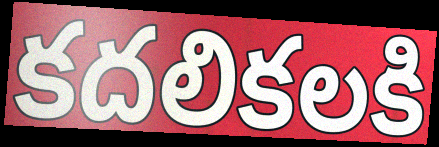
కదలికలకి